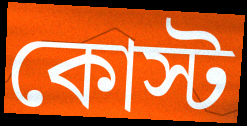
কোস্ট